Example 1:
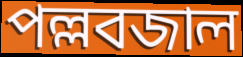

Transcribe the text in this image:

পল্লবজাল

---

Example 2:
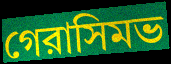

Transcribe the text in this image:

গেরাসিমভ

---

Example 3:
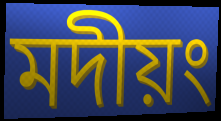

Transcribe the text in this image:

মদীয়ং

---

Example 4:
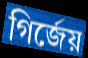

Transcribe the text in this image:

গির্জেয়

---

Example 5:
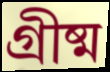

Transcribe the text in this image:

গ্রীষ্ম